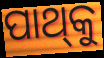
ପାଥ୍‌କୁ